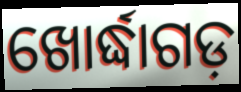
ଖୋର୍ଦ୍ଧାଗଡ଼